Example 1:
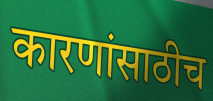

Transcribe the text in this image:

कारणांसाठीच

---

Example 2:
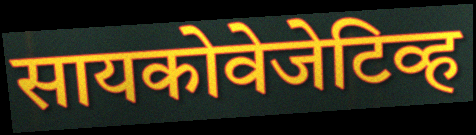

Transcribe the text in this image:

सायकोवेजेटिव्ह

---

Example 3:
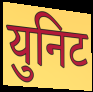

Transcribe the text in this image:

युनिट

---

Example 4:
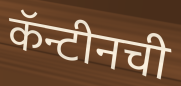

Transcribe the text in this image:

कॅन्टीनची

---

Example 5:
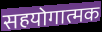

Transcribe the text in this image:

सहयोगात्मक